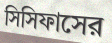
সিসিফাসের